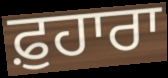
ਫ਼ੁਹਾਰਾ